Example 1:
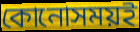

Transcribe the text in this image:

কোনোসময়ই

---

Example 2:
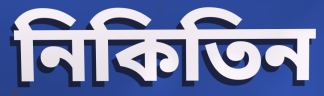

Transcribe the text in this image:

নিকিতিন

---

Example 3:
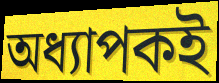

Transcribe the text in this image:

অধ্যাপকই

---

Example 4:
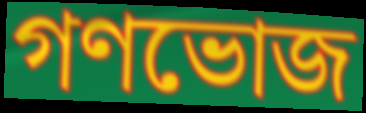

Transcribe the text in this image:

গণভোজ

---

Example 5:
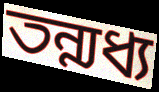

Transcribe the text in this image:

তন্মধ্য